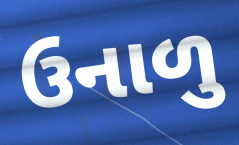
ઉનાળુ